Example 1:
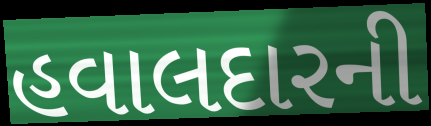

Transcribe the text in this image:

હવાલદારની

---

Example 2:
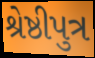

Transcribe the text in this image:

શ્રેષ્ઠીપુત્ર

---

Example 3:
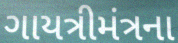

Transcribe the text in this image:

ગાયત્રીમંત્રના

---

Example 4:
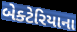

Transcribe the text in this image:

બેક્ટેરિયાના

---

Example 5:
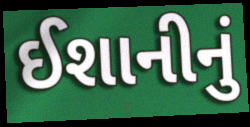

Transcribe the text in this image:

ઈશાનીનું